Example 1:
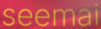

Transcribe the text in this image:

seemai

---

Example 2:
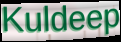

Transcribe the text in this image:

Kuldeep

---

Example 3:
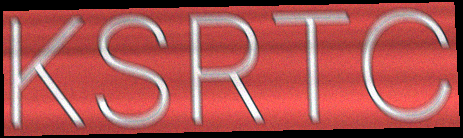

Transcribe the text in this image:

KSRTC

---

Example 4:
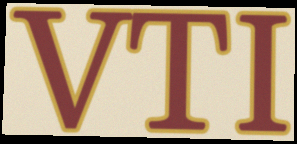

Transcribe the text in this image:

VTI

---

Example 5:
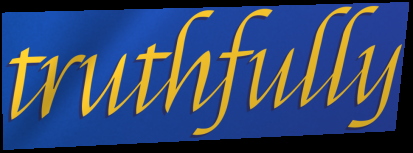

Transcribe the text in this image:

truthfully